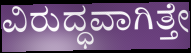
ವಿರುದ್ಧವಾಗಿತ್ತೇ